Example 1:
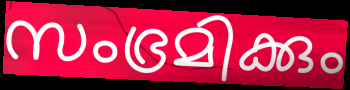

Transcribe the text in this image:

സംഭ്രമിക്കും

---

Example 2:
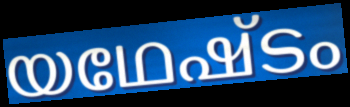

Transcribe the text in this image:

യഥേഷ്‌ടം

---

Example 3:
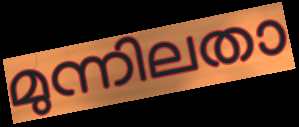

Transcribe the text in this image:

മുന്നിലതാ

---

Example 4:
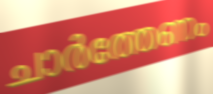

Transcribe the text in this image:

ചാർത്തേണം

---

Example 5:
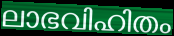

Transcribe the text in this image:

ലാഭവിഹിതം